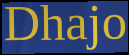
Dhajo